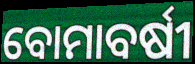
ବୋମାବର୍ଷୀ